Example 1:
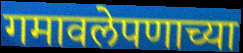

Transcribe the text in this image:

गमावलेपणाच्या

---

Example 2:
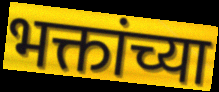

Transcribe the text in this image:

भक्तांच्या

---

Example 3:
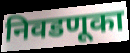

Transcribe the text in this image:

निवडणूका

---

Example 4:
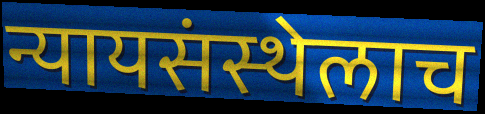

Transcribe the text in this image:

न्यायसंस्थेलाच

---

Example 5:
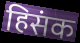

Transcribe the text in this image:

हिसंक